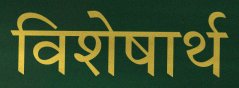
विशेषार्थ